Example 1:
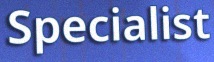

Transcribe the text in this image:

Specialist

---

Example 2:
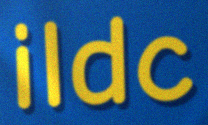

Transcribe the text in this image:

ildc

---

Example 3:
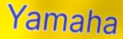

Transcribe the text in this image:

Yamaha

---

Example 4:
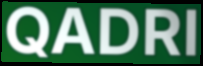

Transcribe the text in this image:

QADRI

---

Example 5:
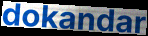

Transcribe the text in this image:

dokandar